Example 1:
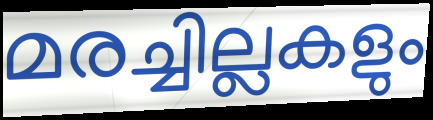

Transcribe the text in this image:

മരച്ചില്ലകളും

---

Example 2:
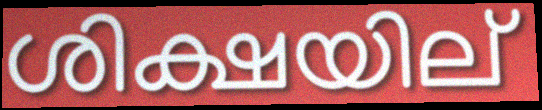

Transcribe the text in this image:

ശിക്ഷയില്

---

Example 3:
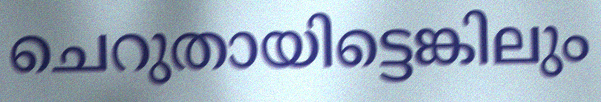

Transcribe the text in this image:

ചെറുതായിട്ടെങ്കിലും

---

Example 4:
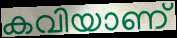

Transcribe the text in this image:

കവിയാണ്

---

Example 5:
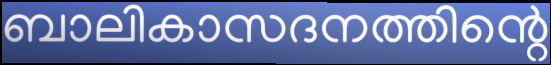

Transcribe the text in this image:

ബാലികാസദനത്തിന്റെ